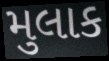
મુલાક